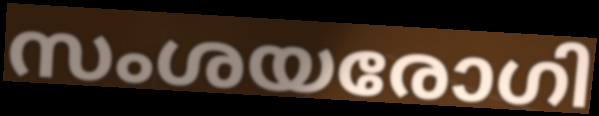
സംശയരോഗി